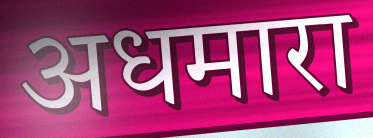
अधमारा